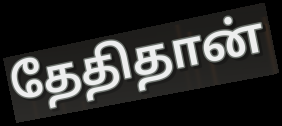
தேதிதான்